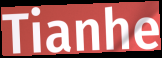
Tianhe